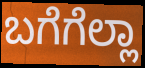
ಬಗೆಗೆಲ್ಲಾ